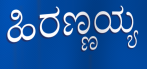
ಹಿರಣ್ಣಯ್ಯ